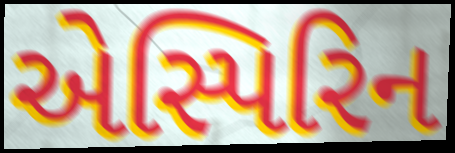
એસ્પિરિન